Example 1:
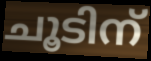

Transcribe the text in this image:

ചൂടിന്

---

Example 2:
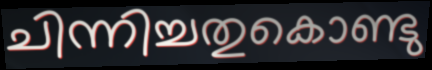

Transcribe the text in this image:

ചിന്നിച്ചതുകൊണ്ടു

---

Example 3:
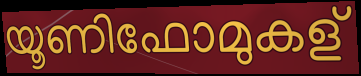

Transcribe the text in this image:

യൂണിഫോമുകള്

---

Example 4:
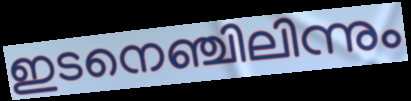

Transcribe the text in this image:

ഇടനെഞ്ചിലിന്നും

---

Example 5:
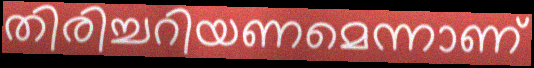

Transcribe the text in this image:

തിരിച്ചറിയണമെന്നാണ്